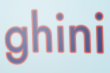
ghini